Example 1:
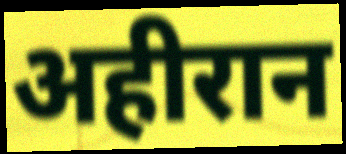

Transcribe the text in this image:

अहीरान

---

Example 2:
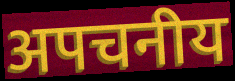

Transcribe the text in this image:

अपचनीय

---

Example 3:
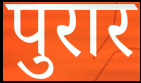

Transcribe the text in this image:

पुरार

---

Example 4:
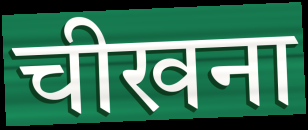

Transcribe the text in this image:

चीखना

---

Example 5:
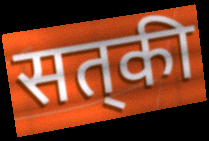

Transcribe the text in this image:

सत्‌की